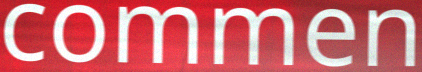
commen